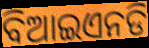
ବିଆଇଏନଡି